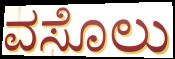
ವಸೊಲು